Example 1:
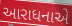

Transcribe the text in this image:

આરાધનાએ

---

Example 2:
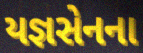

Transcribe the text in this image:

યજ્ઞસેનના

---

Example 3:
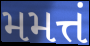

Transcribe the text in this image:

મમત્તં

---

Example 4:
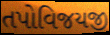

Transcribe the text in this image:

તપોવિજયજી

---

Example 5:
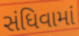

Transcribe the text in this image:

સંધિવામાં